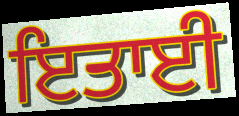
ਇਤਾਈ